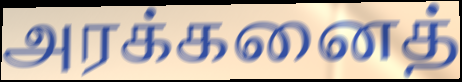
அரக்கனைத்